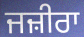
ਜਜ਼ੀਰਾ